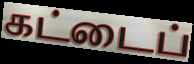
கட்டைப்